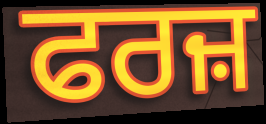
ਫਰਜ਼